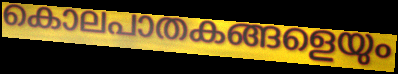
കൊലപാതകങ്ങളെയും